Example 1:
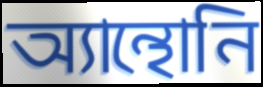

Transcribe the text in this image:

অ্যান্থোনি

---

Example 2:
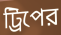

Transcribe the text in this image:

ট্রিপের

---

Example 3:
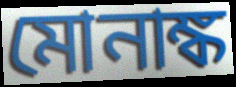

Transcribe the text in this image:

মোনাঙ্ক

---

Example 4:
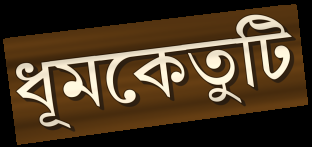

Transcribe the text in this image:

ধূমকেতুটি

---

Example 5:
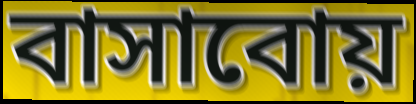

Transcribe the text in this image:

বাসাবোয়